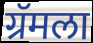
ग्रॅमला